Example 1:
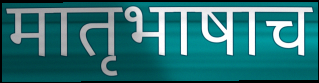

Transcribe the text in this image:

मातृभाषाच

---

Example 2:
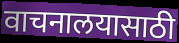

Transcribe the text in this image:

वाचनालयासाठी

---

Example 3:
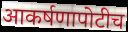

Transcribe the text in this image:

आकर्षणापोटीच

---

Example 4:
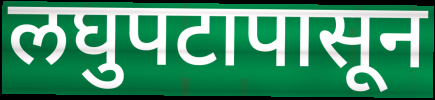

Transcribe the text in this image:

लघुपटापासून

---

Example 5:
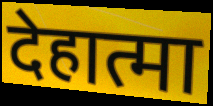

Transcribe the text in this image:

देहात्मा